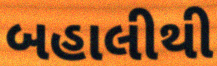
બહાલીથી